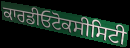
ਕਾਰਡੀਓਟੋਕਸੀਸਿਟੀ